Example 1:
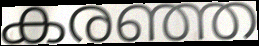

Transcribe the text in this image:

കരഞ്ഞ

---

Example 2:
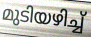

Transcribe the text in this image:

മുടിയഴിച്ച്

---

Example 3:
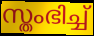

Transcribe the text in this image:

സ്തംഭിച്ച്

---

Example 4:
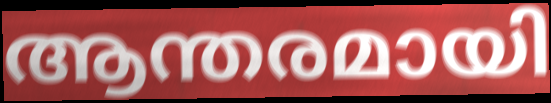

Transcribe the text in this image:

ആന്തരമായി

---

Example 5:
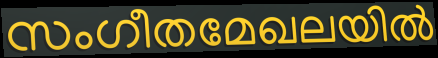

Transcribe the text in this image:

സംഗീതമേഖലയിൽ